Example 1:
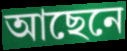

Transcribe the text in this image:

আছেনে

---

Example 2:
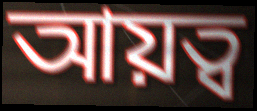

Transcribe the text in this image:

আয়ত্ব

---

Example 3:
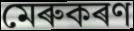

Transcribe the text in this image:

মেৰুকৰণ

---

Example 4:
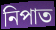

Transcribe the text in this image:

নিপাত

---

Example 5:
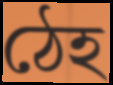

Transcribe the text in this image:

ঠেহ